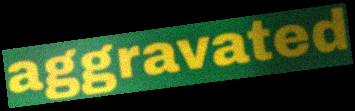
aggravated